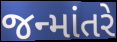
જન્માંતરે